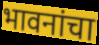
भावनांचा